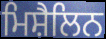
ਮਿਸ਼ੈਲਿਨ